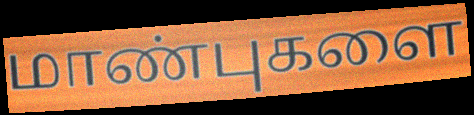
மாண்புகளை